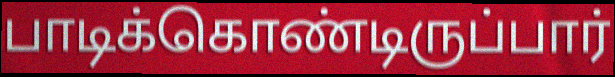
பாடிக்கொண்டிருப்பார்